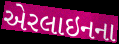
એરલાઇનના